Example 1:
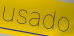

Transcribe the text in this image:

usado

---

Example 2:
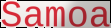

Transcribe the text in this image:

Samoa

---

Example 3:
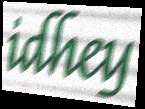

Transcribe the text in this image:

idhey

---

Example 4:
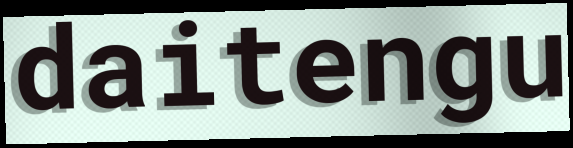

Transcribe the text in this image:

daitengu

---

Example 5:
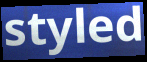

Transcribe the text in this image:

styled